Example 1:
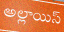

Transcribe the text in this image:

అల్లాయిస్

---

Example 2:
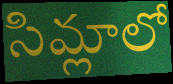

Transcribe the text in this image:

సిమ్లాలో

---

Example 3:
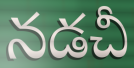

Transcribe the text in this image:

నడచీ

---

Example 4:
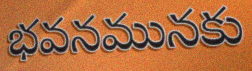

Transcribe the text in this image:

భవనమునకు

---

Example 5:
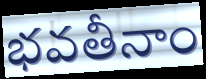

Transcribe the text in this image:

భవతీనాం